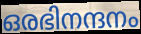
ഒരഭിനന്ദനം